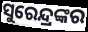
ସୁରେନ୍ଦ୍ରଙ୍କର